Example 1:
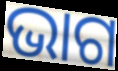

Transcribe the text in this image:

ଭାଗ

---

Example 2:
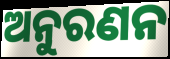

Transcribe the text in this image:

ଅନୁରଣନ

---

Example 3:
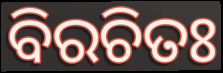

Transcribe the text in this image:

ବିରଚିତଃ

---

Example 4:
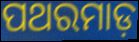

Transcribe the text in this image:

ପଥରମାଡ଼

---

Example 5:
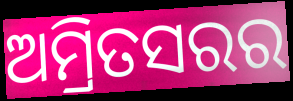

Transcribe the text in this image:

ଅମ୍ରିତସରର